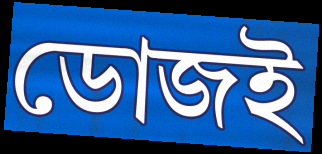
ডোজই